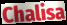
Chalisa